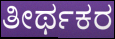
ತೀರ್ಥಕರ